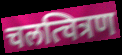
चलत्चित्रण